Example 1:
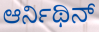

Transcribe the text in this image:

ಆರ್ನಿಥಿನ್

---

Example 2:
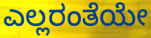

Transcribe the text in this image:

ಎಲ್ಲರಂತೆಯೇ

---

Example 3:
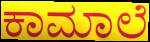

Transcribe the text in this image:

ಕಾಮಾಲೆ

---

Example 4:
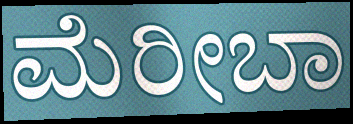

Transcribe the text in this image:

ಮೆರೀಬಾ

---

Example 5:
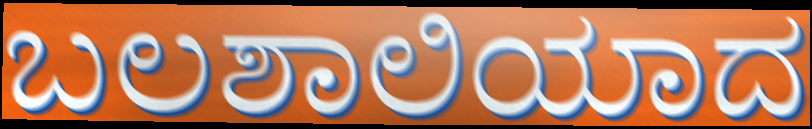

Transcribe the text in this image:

ಬಲಶಾಲಿಯಾದ